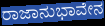
ರಾಜಾನುಭಾವೇನ